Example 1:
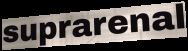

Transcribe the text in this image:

suprarenal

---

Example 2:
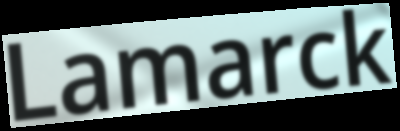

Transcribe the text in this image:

Lamarck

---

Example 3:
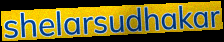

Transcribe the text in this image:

shelarsudhakar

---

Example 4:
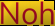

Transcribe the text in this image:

Noh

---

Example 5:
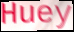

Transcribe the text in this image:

Huey